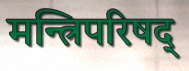
मन्त्रिपरिषद्